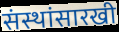
संस्थांसारखी